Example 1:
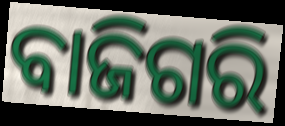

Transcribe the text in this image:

ବାଜିଗରି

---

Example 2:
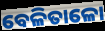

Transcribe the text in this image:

ବେଳିତାଳୋ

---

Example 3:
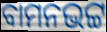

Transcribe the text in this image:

ବାମନଭଟ୍ଟ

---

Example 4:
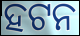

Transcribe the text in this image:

ହଟନ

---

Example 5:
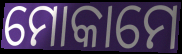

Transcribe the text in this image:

ମୋକାମେ